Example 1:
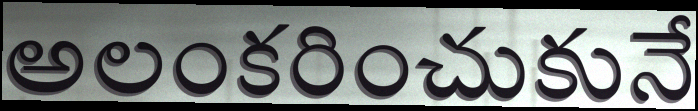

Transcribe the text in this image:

అలంకరించుకునే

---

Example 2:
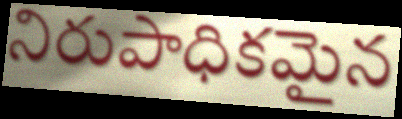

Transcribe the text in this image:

నిరుపాధికమైన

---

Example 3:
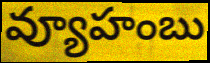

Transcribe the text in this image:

వ్యూహంబు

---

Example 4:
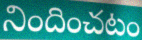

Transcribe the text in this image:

నిందించటం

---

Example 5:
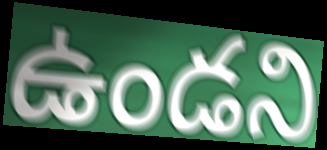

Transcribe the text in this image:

ఉండని